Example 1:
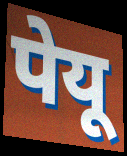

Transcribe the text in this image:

पेयू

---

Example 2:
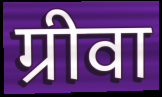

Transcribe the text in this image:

ग्रीवा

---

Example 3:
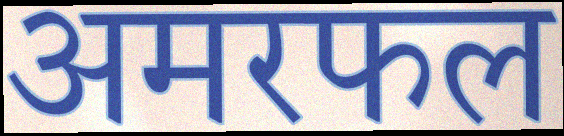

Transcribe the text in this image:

अमरफल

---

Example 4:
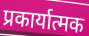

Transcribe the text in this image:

प्रकार्यात्मक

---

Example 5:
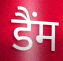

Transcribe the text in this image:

डैंम